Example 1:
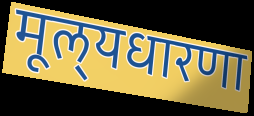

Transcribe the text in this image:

मूल्यधारणा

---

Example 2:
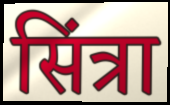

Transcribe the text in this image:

सिंत्रा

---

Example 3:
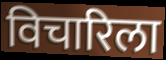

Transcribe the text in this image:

विचारिला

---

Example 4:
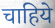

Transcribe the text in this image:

चाहिये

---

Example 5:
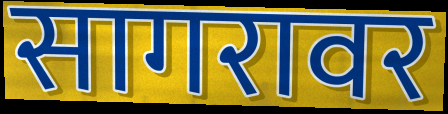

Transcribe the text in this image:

सागरावर